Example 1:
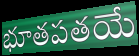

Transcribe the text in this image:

భూతపతయే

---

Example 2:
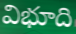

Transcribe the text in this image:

విభూది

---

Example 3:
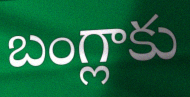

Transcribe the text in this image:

బంగ్లాకు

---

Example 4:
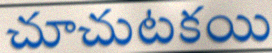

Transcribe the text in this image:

చూచుటకయి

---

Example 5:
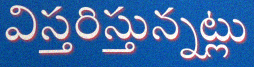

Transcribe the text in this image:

విస్తరిస్తున్నట్లు